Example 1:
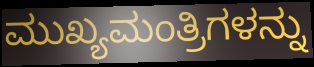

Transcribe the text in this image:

ಮುಖ್ಯಮಂತ್ರಿಗಳನ್ನು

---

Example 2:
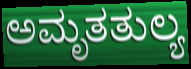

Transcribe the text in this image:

ಅಮೃತತುಲ್ಯ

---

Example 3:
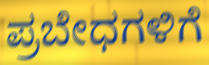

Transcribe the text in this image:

ಪ್ರಬೇಧಗಳಿಗೆ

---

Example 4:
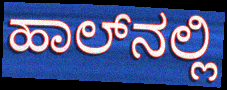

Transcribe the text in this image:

ಹಾಲ್‌ನಲ್ಲಿ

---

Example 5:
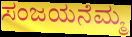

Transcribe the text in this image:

ಸಂಜಯನೆಮ್ಮ